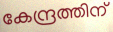
കേന്ദ്രത്തിന്